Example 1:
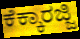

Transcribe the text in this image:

ಕೆಕ್ಕಾರಜ್ಜಿ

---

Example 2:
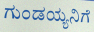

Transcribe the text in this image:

ಗುಂಡಯ್ಯನಿಗೆ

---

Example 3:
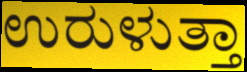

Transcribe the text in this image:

ಉರುಳುತ್ತಾ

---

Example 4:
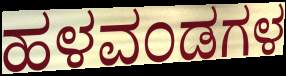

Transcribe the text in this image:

ಹಳವಂಡಗಳ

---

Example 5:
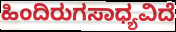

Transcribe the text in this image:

ಹಿಂದಿರುಗಸಾಧ್ಯವಿದೆ